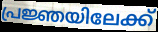
പ്രജ്ഞയിലേക്ക്